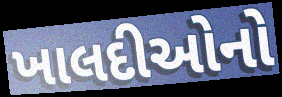
ખાલદીઓનો